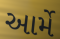
આર્મે